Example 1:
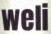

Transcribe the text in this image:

weli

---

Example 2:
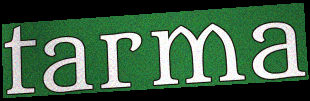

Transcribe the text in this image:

tarma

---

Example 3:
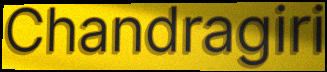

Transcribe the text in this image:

Chandragiri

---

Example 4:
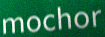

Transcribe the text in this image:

mochor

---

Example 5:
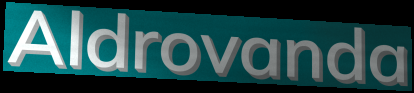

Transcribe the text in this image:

Aldrovanda